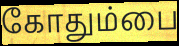
கோதும்பை